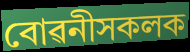
বোৱনীসকলক